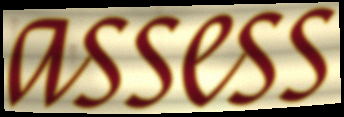
assess